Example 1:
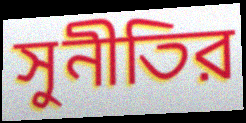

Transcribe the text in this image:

সুনীতির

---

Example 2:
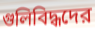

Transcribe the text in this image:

গুলিবিদ্ধদের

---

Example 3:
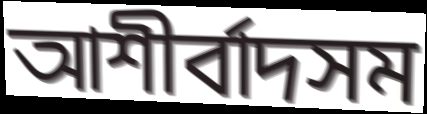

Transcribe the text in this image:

আশীর্বাদসম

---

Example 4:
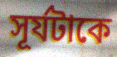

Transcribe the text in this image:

সূর্যটাকে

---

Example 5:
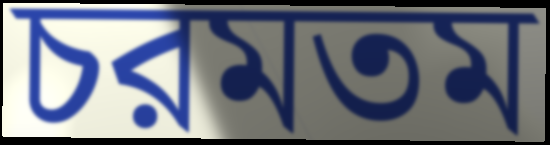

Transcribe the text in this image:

চরমতম